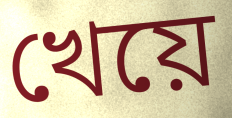
খেয়ে